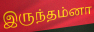
இருந்தம்னா